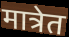
मात्रेत